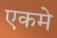
एकमे